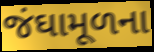
જંઘામૂળના